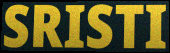
SRISTI